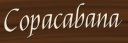
Copacabana